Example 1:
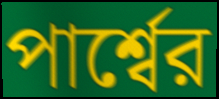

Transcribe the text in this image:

পার্শ্বের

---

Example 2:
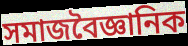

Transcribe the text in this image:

সমাজবৈজ্ঞানিক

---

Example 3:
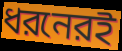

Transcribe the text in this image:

ধরনেরই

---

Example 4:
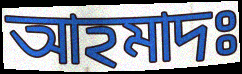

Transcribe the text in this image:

আহমাদঃ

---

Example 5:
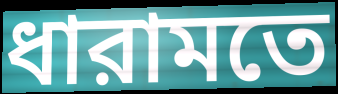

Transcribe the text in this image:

ধারামতে